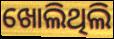
ଖୋଲିଥିଲି